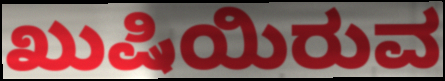
ಖುಷಿಯಿರುವ